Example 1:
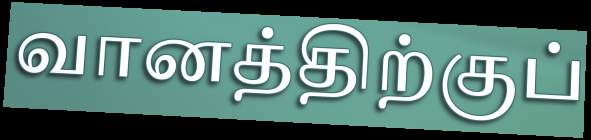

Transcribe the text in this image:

வானத்திற்குப்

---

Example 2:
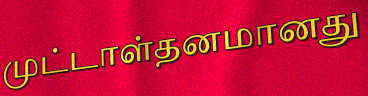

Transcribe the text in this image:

முட்டாள்தனமானது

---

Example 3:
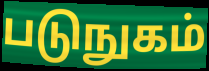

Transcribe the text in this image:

படுநுகம்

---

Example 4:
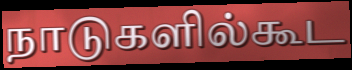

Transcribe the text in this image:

நாடுகளில்கூட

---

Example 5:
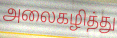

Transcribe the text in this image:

அலைகழித்து